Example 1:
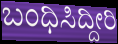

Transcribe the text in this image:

ಬಂಧಿಸಿದ್ದೀರಿ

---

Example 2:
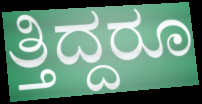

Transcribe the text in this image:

ತ್ತಿದ್ದರೂ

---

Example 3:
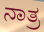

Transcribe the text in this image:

ನಾತ್ರ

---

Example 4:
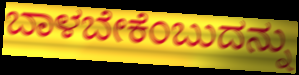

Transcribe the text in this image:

ಬಾಳಬೇಕೆಂಬುದನ್ನು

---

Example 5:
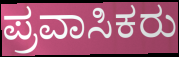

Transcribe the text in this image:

ಪ್ರವಾಸಿಕರು